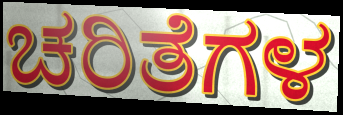
ಚರಿತೆಗಳ